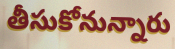
తీసుకోనున్నారు